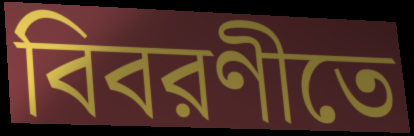
বিবরণীতে